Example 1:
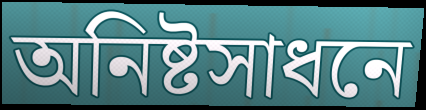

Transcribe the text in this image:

অনিষ্টসাধনে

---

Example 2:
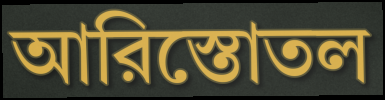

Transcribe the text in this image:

আরিস্তোতল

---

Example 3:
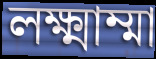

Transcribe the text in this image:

লক্ষ্মাম্মা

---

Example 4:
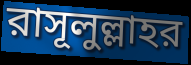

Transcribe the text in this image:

রাসূলুল্লাহর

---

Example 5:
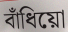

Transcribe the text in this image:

বাঁধিয়ো